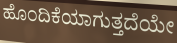
ಹೊಂದಿಕೆಯಾಗುತ್ತದೆಯೇ